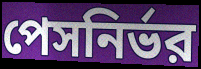
পেসনির্ভর